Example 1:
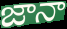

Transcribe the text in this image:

జానా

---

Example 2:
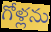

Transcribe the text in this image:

గోళ్లను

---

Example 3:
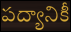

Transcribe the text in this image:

పద్యానికీ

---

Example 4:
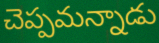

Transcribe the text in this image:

చెప్పమన్నాడు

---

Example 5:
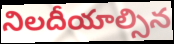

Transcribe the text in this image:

నిలదీయాల్సిన